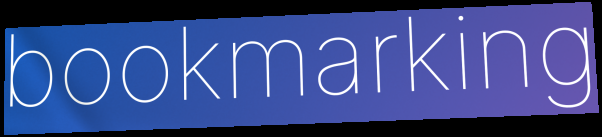
bookmarking